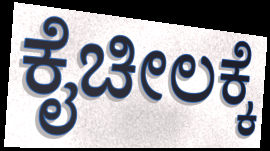
ಕೈಚೀಲಕ್ಕೆ